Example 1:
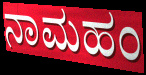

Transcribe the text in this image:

ನಾಮಹಂ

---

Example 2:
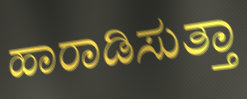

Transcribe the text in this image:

ಹಾರಾಡಿಸುತ್ತಾ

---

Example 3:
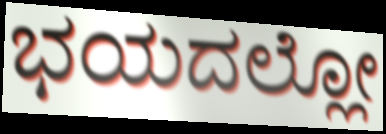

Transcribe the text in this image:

ಭಯದಲ್ಲೋ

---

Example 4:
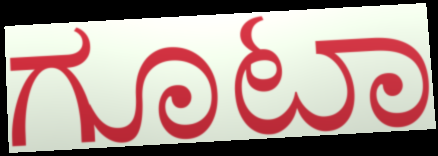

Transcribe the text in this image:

ಗೂಟಾ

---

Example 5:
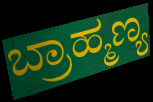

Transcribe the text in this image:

ಬ್ರಾಹ್ಮಣ್ಯ